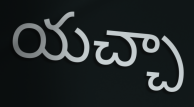
యచ్చా